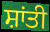
ਸ਼ਾਂਤੀ